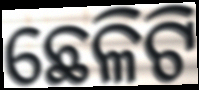
ଛେଳିଟି